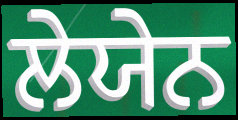
ਲੇਯੇਨ